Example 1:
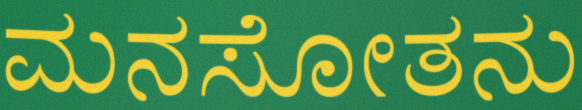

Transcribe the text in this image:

ಮನಸೋತನು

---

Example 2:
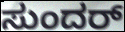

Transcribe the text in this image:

ಸುಂದರ್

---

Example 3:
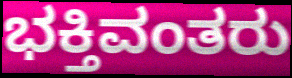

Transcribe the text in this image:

ಭಕ್ತಿವಂತರು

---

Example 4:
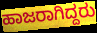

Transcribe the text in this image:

ಹಾಜರಾಗಿದ್ದರು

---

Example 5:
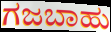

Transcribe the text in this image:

ಗಜಬಾಹು